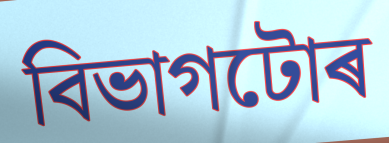
বিভাগটোৰ